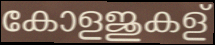
കോളജുകള്